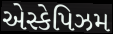
એસ્કેપિઝમ